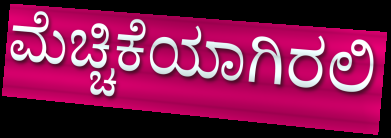
ಮೆಚ್ಚಿಕೆಯಾಗಿರಲಿ